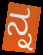
ನ್ನ